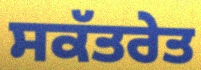
ਸਕੱਤਰੇਤ